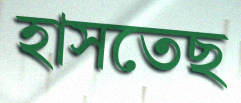
হাসতেছ